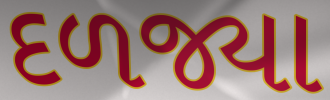
દળજ્યા